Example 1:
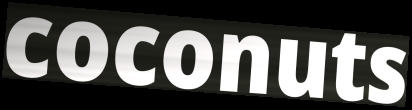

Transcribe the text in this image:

coconuts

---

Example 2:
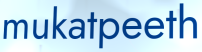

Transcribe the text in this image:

mukatpeeth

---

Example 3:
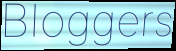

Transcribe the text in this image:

Bloggers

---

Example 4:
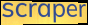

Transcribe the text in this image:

scraper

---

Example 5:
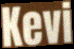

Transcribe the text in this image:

Kevi